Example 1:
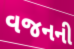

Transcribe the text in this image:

વજનની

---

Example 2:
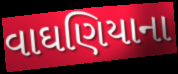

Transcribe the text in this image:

વાઘણિયાના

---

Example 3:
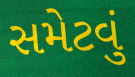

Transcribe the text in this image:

સમેટવું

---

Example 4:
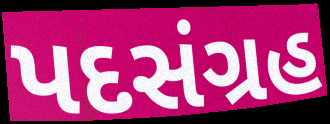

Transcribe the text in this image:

પદસંગ્રહ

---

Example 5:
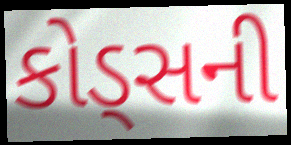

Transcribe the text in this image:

કોડ્સની